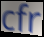
cfr